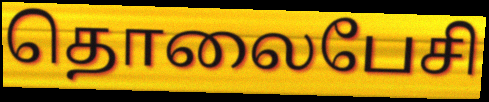
தொலைபேசி